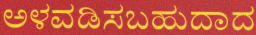
ಅಳವಡಿಸಬಹುದಾದ